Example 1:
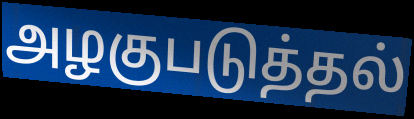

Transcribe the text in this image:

அழகுபடுத்தல்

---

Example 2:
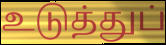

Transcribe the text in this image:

உடுத்துப்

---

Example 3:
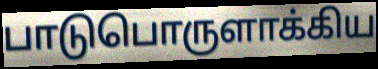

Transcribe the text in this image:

பாடுபொருளாக்கிய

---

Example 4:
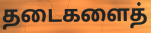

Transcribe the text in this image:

தடைகளைத்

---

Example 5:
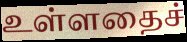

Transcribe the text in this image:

உள்ளதைச்